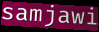
samjawi